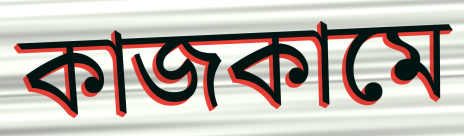
কাজকামে